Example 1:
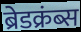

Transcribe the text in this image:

ब्रेडक्रंब्स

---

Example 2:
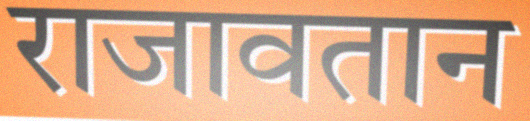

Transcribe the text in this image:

राजावतान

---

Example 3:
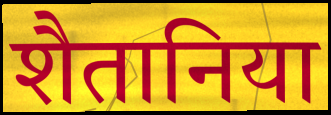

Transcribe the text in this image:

शैतानिया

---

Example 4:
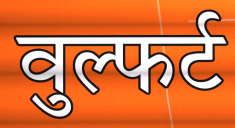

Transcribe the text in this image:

वुल्फर्ट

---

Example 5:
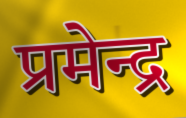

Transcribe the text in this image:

प्रमेन्द्र